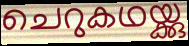
ചെറുകഥയ്ക്കു